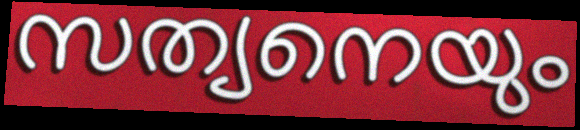
സത്യനെയും